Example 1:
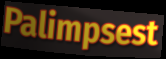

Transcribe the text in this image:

Palimpsest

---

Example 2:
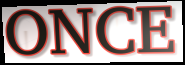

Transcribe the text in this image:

ONCE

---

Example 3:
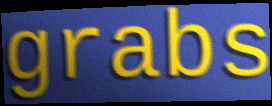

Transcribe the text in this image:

grabs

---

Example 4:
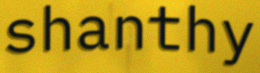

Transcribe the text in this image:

shanthy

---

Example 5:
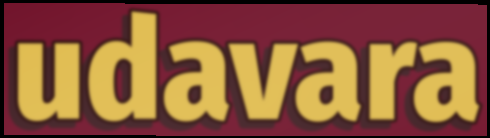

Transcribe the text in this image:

udavara